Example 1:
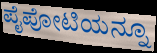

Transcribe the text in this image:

ಪೈಪೋಟಿಯನ್ನೂ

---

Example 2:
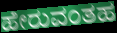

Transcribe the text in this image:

ಹೇರುವಂತಹ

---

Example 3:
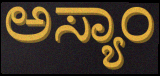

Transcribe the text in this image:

ಅಸ್ಯಾಂ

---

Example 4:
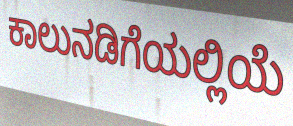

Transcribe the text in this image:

ಕಾಲುನಡಿಗೆಯಲ್ಲಿಯೆ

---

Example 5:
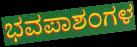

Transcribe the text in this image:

ಭವಪಾಶಂಗಳ